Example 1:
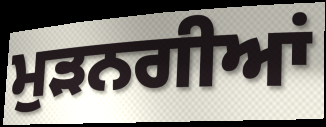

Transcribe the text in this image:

ਮੁੜਨਗੀਆਂ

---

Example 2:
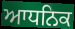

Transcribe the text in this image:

ਆਧਨਿਕ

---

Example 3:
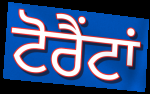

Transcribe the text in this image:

ਟੋਰੈਂਟਾਂ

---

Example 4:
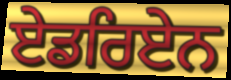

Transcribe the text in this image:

ਏਡਰਿਏਨ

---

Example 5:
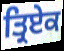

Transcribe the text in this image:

ਤ੍ਰਿਏਕ